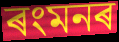
ৰংমনৰ